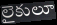
లైకులూ